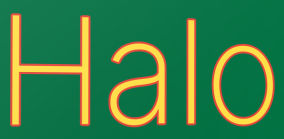
Halo